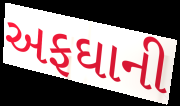
અફઘાની